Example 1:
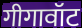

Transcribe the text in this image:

गीगावॉट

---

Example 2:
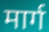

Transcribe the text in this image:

मार्ग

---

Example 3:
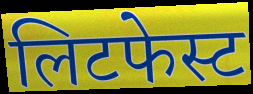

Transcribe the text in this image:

लिटफेस्ट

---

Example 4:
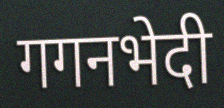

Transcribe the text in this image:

गगनभेदी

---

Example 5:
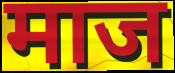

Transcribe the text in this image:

माज